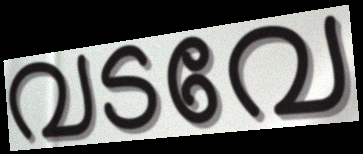
വടവേ